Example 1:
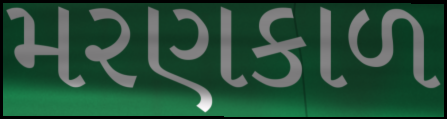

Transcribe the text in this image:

મરણકાળ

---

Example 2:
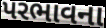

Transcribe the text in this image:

પરભાવના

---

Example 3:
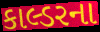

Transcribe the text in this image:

કાલ્ડરના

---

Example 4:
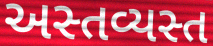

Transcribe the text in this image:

અસ્તવ્યસ્ત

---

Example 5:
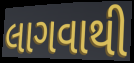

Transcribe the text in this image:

લાગવાથી